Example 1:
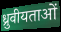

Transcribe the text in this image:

ध्रुवीयताओं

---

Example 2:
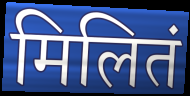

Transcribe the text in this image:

मिलितं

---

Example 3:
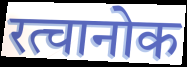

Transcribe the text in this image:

रत्चानोक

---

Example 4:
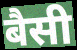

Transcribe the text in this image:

बैसी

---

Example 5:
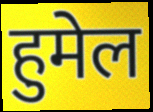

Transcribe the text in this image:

हुमेल